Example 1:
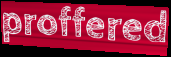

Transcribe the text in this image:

proffered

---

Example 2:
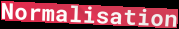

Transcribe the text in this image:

Normalisation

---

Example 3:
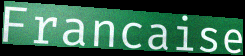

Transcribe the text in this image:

Francaise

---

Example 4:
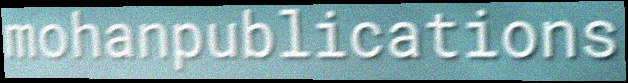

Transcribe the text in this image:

mohanpublications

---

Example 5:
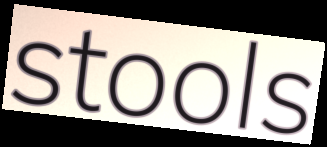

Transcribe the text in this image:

stools